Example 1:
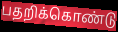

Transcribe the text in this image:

பதறிக்கொண்டு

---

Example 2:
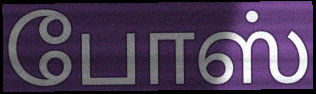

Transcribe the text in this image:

போஸ்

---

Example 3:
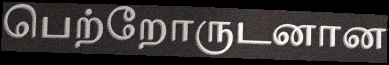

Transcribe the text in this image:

பெற்றோருடனான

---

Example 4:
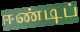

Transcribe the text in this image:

ஈண்டிப்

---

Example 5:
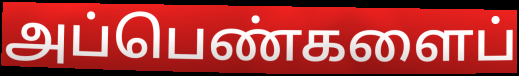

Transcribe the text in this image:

அப்பெண்களைப்